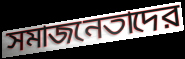
সমাজনেতাদের